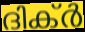
ദിക്ർ